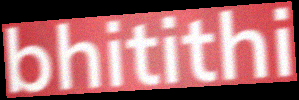
bhitithi